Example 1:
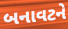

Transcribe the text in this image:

બનાવટને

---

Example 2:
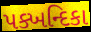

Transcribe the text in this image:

પક્ખન્દિકા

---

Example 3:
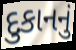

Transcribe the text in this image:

દુકાનનું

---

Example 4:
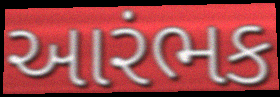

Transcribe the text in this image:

આરંભક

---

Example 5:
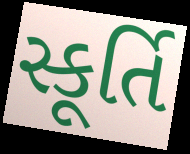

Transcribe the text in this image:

સ્કૂર્તિ